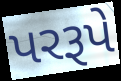
પરરૂપે